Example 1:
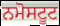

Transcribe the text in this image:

ਨਮੋਸਟੂਟ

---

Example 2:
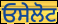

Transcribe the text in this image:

ਓਸੇਲੋਟ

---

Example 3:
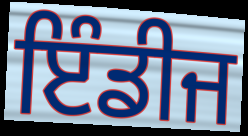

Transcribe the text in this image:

ਇੰਡੀਜ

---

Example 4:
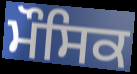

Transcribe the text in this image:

ਮੌਸਿਕ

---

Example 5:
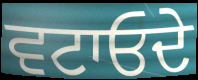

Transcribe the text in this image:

ਵਟਾਓਦੇ